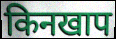
किनखाप